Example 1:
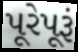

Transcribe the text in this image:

પૂરેપૂરૂં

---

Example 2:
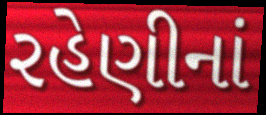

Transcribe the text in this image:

રહેણીનાં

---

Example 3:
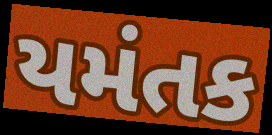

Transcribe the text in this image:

યમંતક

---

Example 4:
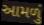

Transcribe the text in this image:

આમળું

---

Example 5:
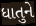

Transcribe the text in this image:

ધાતુને